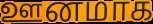
ஊனமாக